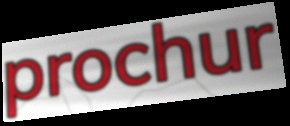
prochur